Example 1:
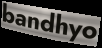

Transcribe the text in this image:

bandhyo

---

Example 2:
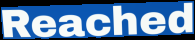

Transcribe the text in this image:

Reached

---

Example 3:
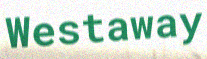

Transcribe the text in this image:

Westaway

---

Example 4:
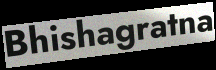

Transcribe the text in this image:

Bhishagratna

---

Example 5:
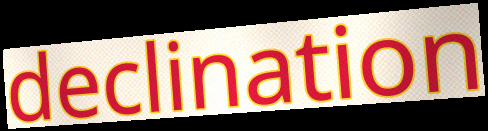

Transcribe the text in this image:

declination